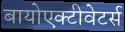
बायोएक्टीवेटर्स